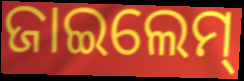
ଜାଇଲେମ୍